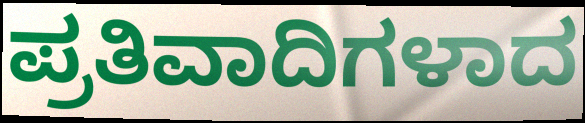
ಪ್ರತಿವಾದಿಗಳಾದ